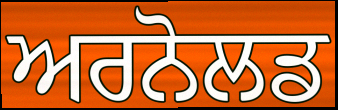
ਅਰਨੋਲਡ